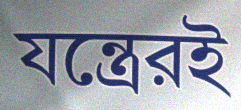
যন্ত্রেরই